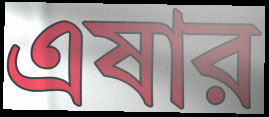
এষার